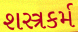
શસ્ત્રકર્મ